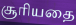
சூரியதை